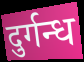
दुर्गन्‍ध